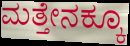
ಮತ್ತೇನಕ್ಕೂ